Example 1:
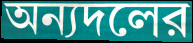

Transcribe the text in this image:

অন্যদলের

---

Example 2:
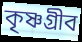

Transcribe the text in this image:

কৃষ্ণগ্রীব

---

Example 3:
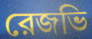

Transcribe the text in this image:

রেজভি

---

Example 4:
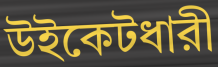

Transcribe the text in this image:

উইকেটধারী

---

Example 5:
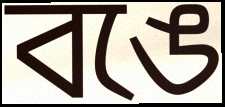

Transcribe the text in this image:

বঙে